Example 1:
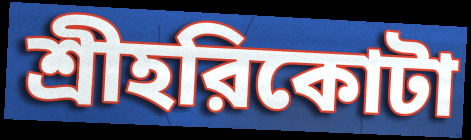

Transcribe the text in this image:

শ্রীহরিকোটা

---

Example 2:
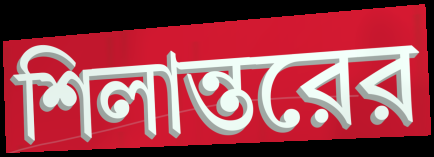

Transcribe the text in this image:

শিলান্তরের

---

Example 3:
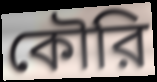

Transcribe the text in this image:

কৌরি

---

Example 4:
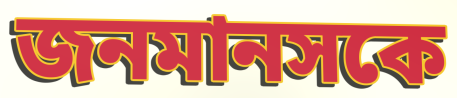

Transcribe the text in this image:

জনমানসকে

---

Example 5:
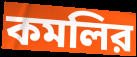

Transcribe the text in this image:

কমলির